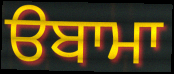
ੳਬਾਮਾ